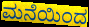
ಮನೆಯಿಂದ